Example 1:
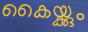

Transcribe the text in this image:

കൈയ്ക്കും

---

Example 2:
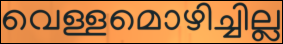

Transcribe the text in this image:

വെള്ളമൊഴിച്ചില്ല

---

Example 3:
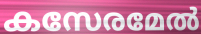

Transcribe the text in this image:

കസേരമേൽ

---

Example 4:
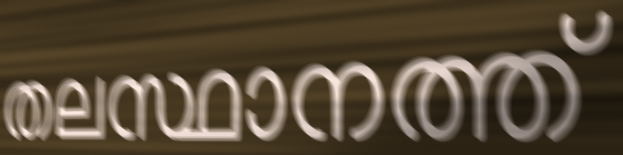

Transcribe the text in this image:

തലസ്ഥാനത്ത്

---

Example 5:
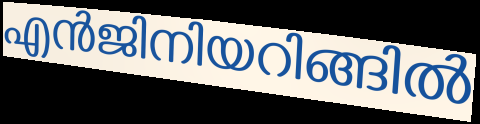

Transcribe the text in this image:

എൻജിനിയറിങ്ങിൽ